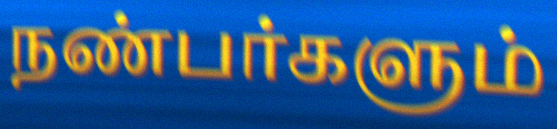
நண்பர்களும்